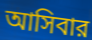
আসিবার